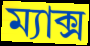
ম্যাক্স